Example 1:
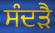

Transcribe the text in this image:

ਸੰਦੜੈ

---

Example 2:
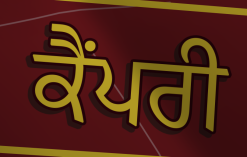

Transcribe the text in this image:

ਕੈਂਪਰੀ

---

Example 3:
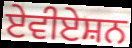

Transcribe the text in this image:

ਏਵੀਏਸ਼ਨ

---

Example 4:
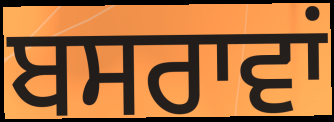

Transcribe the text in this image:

ਬਸਰਾਵਾਂ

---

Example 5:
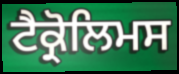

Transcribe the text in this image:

ਟੈਕ੍ਰੋਲਿਮਸ